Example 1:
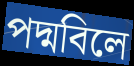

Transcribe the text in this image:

পদ্মবিলে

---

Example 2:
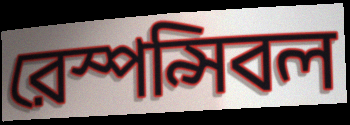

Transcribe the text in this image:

রেস্পন্সিবল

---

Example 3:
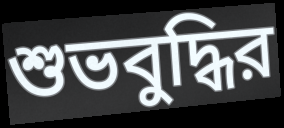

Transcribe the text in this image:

শুভবুদ্ধির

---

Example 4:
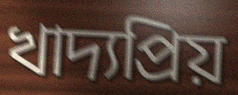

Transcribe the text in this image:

খাদ্যপ্রিয়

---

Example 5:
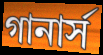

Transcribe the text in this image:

গানার্স